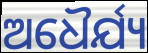
ଅଧୈର୍ଯ୍ୟ